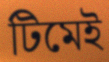
টিমেই